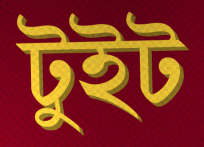
টুইট